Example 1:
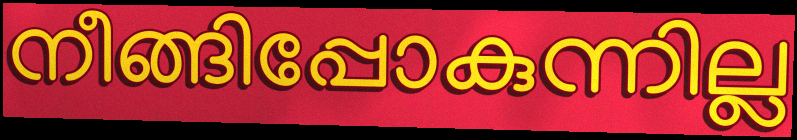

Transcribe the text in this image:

നീങ്ങിപ്പോകുന്നില്ല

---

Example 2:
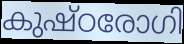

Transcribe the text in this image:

കുഷ്ഠരോഗി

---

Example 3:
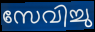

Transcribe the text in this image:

സേവിച്ചു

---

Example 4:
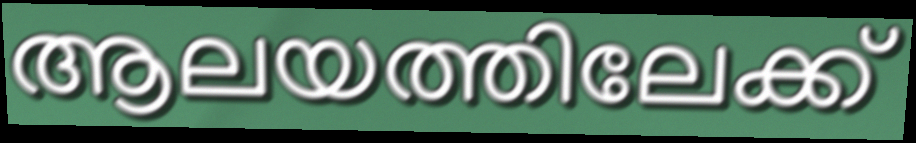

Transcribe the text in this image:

ആലയത്തിലേക്ക്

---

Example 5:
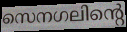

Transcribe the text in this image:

സെനഗലിന്റെ